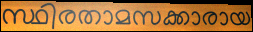
സ്ഥിരതാമസക്കാരായ